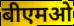
बीएमओ